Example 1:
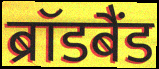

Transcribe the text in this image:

ब्रॉडबैंड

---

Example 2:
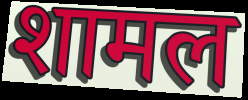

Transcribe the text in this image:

शामल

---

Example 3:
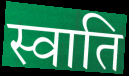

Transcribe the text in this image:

स्वाति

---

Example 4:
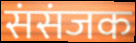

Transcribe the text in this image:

संसंजक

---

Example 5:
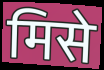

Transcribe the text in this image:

मिसे